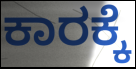
ಕಾರಕ್ಕೆ